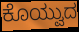
ಕೊಯ್ವುದ